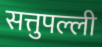
सत्तुपल्ली